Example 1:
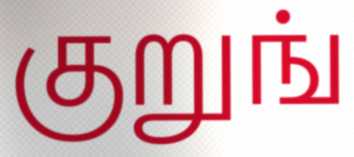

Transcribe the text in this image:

குறுங்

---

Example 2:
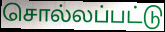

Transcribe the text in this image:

சொல்லப்பட்டு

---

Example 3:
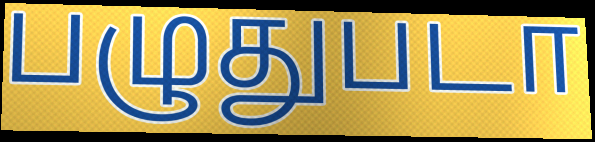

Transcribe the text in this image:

பழுதுபடா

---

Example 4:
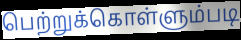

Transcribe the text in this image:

பெற்றுக்கொள்ளும்படி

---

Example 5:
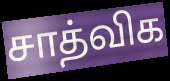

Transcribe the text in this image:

சாத்விக